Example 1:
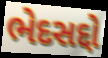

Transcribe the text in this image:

ભેદસદ્દો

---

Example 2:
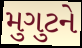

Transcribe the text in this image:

મુગુટને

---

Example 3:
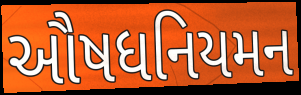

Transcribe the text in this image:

ઔષધનિયમન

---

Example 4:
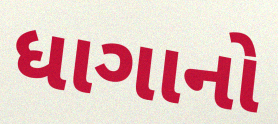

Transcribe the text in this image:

ધાગાનો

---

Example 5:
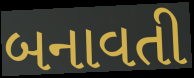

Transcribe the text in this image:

બનાવતી